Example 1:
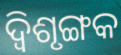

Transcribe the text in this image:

ଦ୍ଵିଶୃଙ୍ଗକ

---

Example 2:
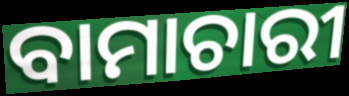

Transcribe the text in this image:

ବାମାଚାରୀ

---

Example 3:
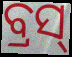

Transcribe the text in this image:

ବ୍ରସ୍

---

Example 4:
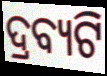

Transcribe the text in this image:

ଦ୍ରବ୍ୟଟି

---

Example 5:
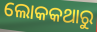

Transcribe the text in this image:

ଲୋକକଥାରୁ